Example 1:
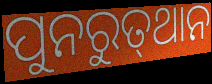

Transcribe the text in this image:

ପୁନରୁତ୍‍ଥାନ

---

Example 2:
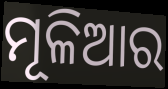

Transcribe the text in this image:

ମୂଳିଆର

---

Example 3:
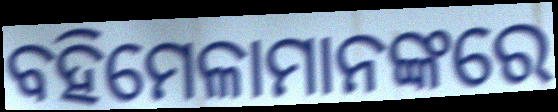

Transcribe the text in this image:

ବହିମେଳାମାନଙ୍କରେ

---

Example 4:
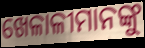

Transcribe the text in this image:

ଖେଳାଳୀମାନଙ୍କୁ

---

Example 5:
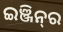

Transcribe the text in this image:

ଇଞ୍ଜିନ୍‍ର